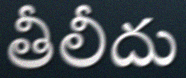
తీలీదు